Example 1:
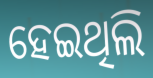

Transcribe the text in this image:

ହେଇଥିଲି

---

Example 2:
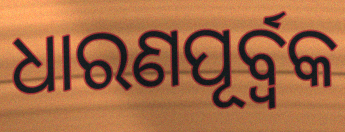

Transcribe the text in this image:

ଧାରଣପୂର୍ବ୍ବକ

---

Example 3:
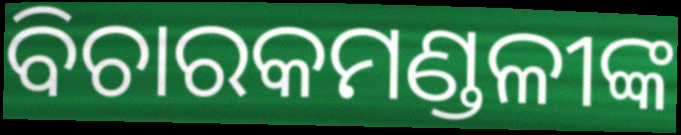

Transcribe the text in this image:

ବିଚାରକମଣ୍ଡଳୀଙ୍କ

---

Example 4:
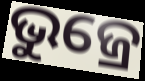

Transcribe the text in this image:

ଭୁଜ୍ରେ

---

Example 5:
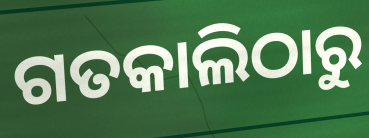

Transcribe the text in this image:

ଗତକାଲିଠାରୁ